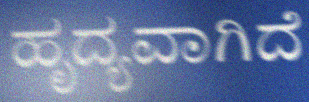
ಹೃದ್ಯವಾಗಿದೆ